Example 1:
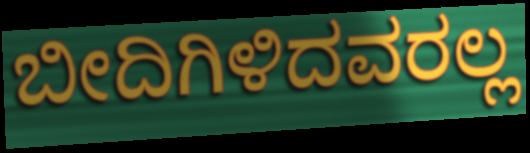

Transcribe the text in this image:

ಬೀದಿಗಿಳಿದವರಲ್ಲ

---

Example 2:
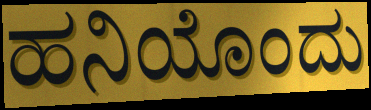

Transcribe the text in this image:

ಹನಿಯೊಂದು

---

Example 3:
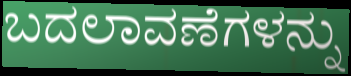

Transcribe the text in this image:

ಬದಲಾವಣೆಗಳನ್ನು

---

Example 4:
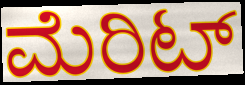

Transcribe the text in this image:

ಮೆರಿಟ್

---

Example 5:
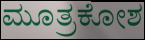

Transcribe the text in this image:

ಮೂತ್ರಕೋಶ